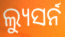
ଲ୍ୟୁସର୍ନ